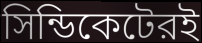
সিন্ডিকেটেরই